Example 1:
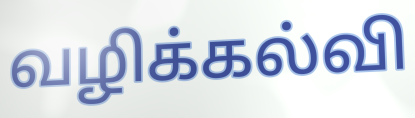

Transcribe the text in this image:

வழிக்கல்வி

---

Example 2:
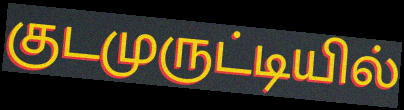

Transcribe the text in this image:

குடமுருட்டியில்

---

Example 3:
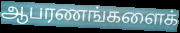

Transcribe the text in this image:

ஆபரணங்களைக்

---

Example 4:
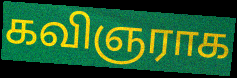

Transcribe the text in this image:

கவிஞராக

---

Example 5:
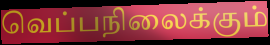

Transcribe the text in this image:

வெப்பநிலைக்கும்